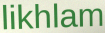
likhlam